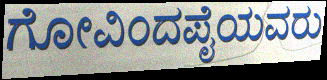
ಗೋವಿಂದಪೈಯವರು